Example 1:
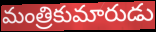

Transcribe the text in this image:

మంత్రికుమారుడు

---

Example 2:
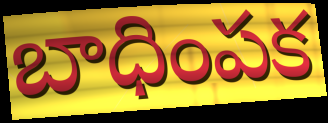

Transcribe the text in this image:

బాధింపక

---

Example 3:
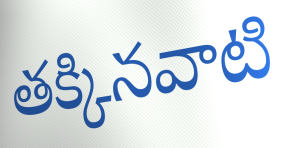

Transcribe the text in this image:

తక్కినవాటి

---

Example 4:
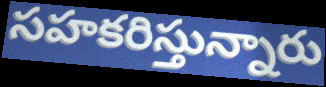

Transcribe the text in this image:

సహకరిస్తున్నారు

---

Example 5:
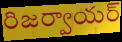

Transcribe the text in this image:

రిజర్వాయర్